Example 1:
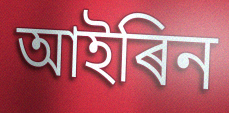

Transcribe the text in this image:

আইৰিন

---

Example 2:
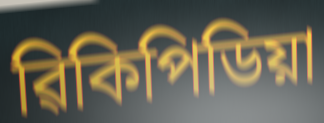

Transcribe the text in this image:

ৱিকিপিডিয়া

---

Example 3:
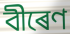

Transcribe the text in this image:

বীৰেণ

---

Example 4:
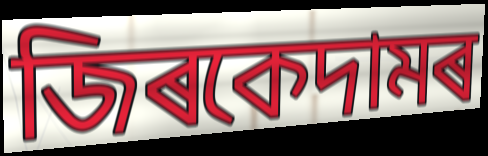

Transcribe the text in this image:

জিৰকেদামৰ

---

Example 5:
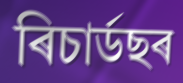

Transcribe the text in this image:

ৰিচাৰ্ডছৰ